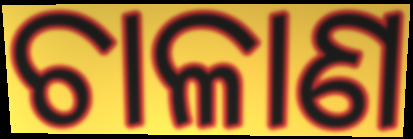
ଚାଳାଣ